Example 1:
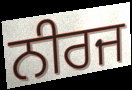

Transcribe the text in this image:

ਨੀਰਜ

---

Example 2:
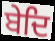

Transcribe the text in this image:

ਬੇਦਿ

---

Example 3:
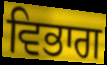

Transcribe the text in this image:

ਵਿਭਾਗ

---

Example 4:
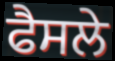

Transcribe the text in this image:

ਫੈਸਲੇ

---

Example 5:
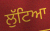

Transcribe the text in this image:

ਲੁੱਟਿਆ